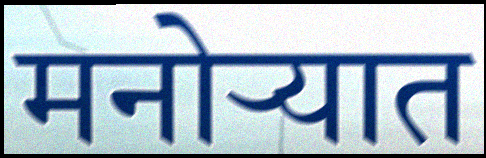
मनोऱ्यात